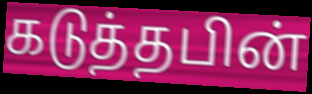
கடுத்தபின்